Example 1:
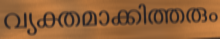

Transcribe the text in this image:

വ്യക്തമാക്കിത്തരും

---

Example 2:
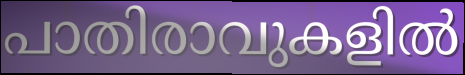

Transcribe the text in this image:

പാതിരാവുകളിൽ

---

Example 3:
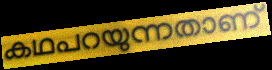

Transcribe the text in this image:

കഥപറയുന്നതാണ്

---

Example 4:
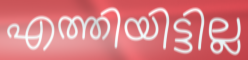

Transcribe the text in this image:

എത്തിയിട്ടില്ല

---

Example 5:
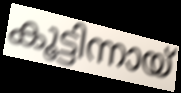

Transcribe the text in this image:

കൂട്ടിന്നായ്